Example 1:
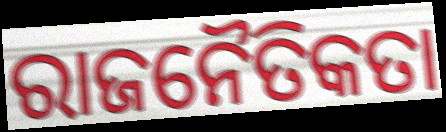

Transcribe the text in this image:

ରାଜନୈତିକତା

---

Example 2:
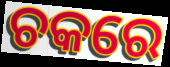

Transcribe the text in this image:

ଚକରେ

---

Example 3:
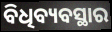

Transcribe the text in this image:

ବିଧିବ୍ୟବସ୍ଥାର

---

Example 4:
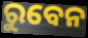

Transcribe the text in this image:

ରୁବେନ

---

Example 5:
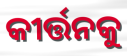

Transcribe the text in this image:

କୀର୍ତ୍ତନକୁ